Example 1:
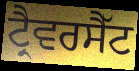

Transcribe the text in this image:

ਟ੍ਰੈਵਰਸੈੱਟ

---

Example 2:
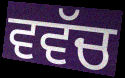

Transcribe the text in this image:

ਵਵੱਚ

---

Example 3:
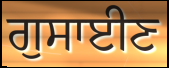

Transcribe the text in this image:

ਗੁਸਾਈਣ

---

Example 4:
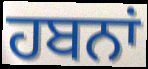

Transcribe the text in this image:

ਹਬਨਾਂ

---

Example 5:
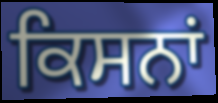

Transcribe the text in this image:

ਕਿਸਨਾਂ